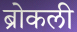
ब्रोकली